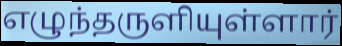
எழுந்தருளியுள்ளார்